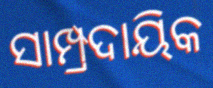
ସାମ୍ପ୍ରଦାୟିକ